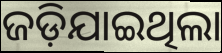
ଜଡ଼ିଯାଇଥିଲା